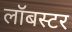
लॉबस्टर